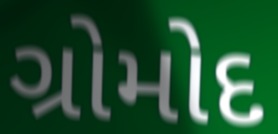
ગ્રોમોદ